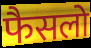
फैसलो